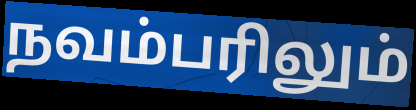
நவம்பரிலும்